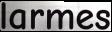
larmes